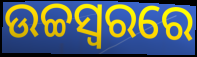
ଉଚ୍ଚସ୍ଵରରେ